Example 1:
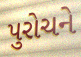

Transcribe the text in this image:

પુરોચને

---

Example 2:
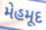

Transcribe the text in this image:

મેહમૂદ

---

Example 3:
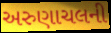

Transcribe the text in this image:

અરુણાચલની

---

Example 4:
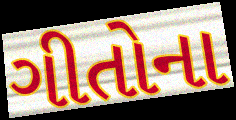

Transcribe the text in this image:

ગીતોના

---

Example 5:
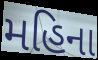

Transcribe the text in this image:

મહિના